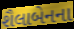
શૈલાબેનના